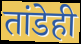
तांडेही